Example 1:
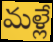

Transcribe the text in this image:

మళ్లే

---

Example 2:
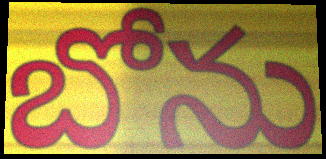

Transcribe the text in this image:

బోను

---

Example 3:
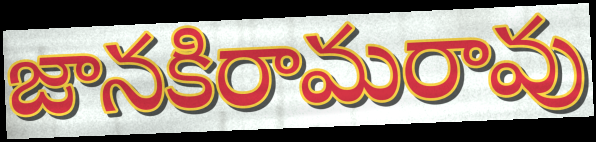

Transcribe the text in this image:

జానకిరామరావు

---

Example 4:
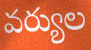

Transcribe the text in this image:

వర్యుల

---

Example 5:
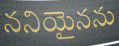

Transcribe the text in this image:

ననియైనను